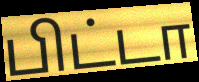
பிட்டா